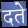
दते